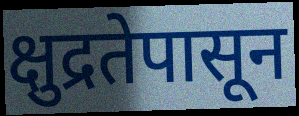
क्षुद्रतेपासून